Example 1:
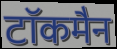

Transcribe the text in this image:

टॉकमैन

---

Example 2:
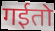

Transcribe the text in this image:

गईतो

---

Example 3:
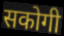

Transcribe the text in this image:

सकोगी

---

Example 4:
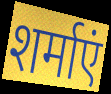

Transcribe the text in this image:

शर्माएं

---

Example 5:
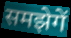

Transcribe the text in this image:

समझेगें